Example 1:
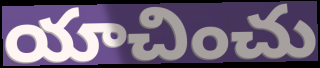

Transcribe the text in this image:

యాచించు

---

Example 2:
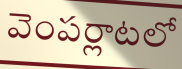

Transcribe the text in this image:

వెంపర్లాటలో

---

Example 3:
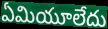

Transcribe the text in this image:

ఏమియూలేదు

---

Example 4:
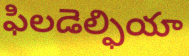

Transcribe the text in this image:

ఫిలడెల్ఫియా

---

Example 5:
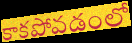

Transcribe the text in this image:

కాకపోవడంలో